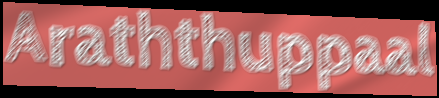
Araththuppaal